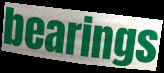
bearings